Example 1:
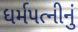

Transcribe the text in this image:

ધર્મપત્નીનું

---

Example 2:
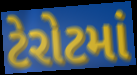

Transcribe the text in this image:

ટેરોટમાં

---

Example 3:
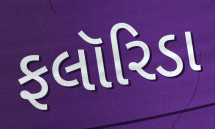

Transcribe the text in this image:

ફલૉરિડા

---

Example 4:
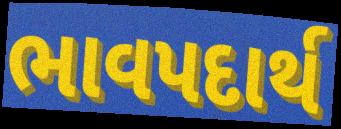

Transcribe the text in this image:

ભાવપદાર્થ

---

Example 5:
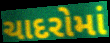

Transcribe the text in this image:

ચાદરોમાં